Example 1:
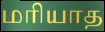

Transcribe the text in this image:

மரியாத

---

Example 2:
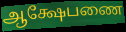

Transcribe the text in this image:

ஆக்ஷேபணை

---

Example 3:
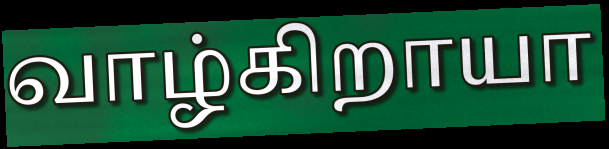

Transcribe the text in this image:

வாழ்கிறாயா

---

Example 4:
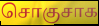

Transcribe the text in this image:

சொகுசாக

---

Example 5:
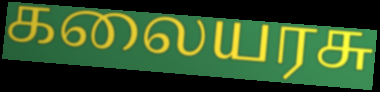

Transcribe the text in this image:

கலையரசு